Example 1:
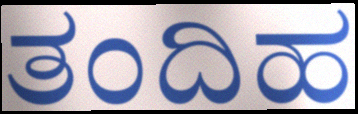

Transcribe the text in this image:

ತಂದಿಹ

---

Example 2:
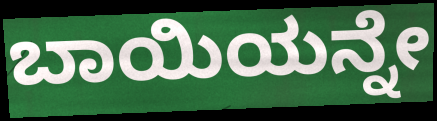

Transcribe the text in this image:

ಬಾಯಿಯನ್ನೇ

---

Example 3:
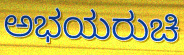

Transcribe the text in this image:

ಅಭಯರುಚಿ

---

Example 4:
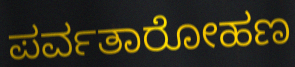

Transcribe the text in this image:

ಪರ್ವತಾರೋಹಣ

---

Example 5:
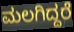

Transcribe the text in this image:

ಮಲಗಿದ್ದರೆ